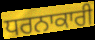
ਧਰਨਾਕਾਰੀ